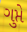
ગુપ્તે